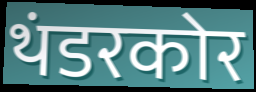
थंडरकोर